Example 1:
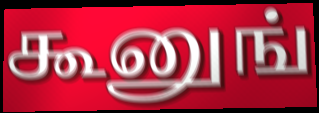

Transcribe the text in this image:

கூனுங்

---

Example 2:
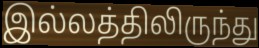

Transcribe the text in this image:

இல்லத்திலிருந்து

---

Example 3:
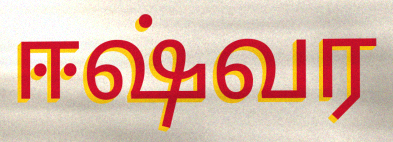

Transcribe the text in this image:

ஈஷ்வர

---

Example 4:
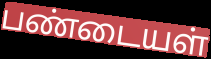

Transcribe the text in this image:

பண்டையள்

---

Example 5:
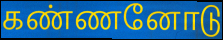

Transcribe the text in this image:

கண்ணனோடு